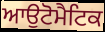
ਆਉਟੋਮੈਟਿਕ